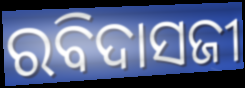
ରବିଦାସଜୀ